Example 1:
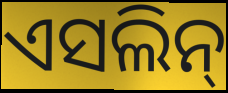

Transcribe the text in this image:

ଏସଲିନ୍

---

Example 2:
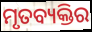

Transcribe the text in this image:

ମୃତବ୍ୟକ୍ତିର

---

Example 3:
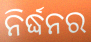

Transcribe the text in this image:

ନିର୍ଦ୍ଧନର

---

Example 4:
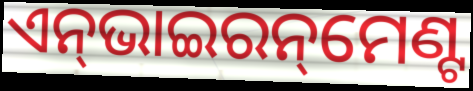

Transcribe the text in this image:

ଏନ୍‌ଭାଇରନ୍‌ମେଣ୍ଟ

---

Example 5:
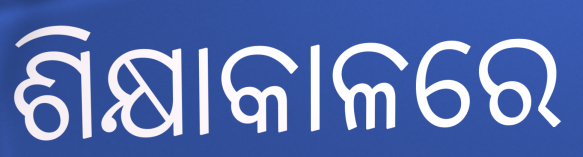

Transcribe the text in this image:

ଶିକ୍ଷାକାଳରେ